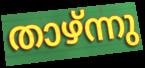
താഴ്ന്നു